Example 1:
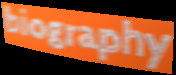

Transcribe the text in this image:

biography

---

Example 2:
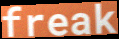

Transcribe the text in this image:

freak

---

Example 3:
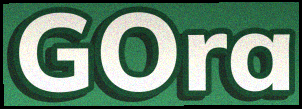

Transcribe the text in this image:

GOra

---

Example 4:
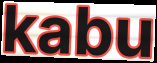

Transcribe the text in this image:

kabu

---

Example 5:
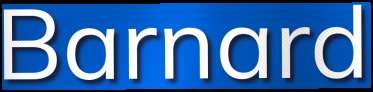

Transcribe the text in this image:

Barnard